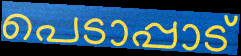
പെടാപ്പാട്